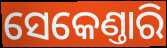
ସେକେଣ୍ତାରି